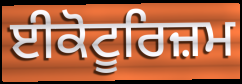
ਈਕੋਟੂਰਿਜ਼ਮ